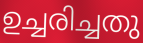
ഉച്ചരിച്ചതു